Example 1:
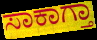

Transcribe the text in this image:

ಸಾಕಾಗ್ತಾ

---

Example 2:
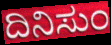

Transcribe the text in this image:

ದಿನಿಸುಂ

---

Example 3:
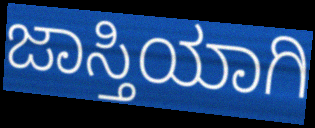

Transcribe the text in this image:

ಜಾಸ್ತಿಯಾಗಿ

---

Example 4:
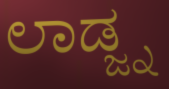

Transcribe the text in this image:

ಲಾಡ್ಜ್ನ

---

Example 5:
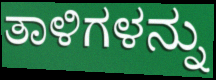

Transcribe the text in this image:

ತಾಳಿಗಳನ್ನು